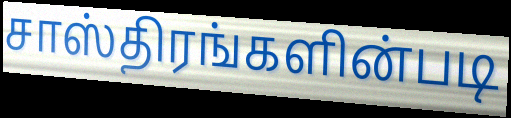
சாஸ்திரங்களின்படி